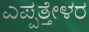
ಎಪ್ಪತ್ತೇಳರ